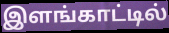
இளங்காட்டில்